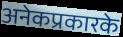
अनेकप्रकारके